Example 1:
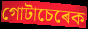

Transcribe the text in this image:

গোটাচেৰেক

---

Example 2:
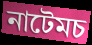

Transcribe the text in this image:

নাটেমচ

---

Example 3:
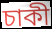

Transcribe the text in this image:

চাকী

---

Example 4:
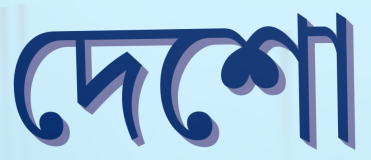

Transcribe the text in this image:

দেশো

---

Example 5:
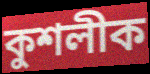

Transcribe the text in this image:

কুশলীক